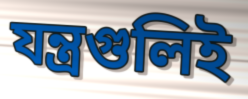
যন্ত্রগুলিই